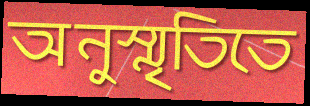
অনুস্মৃতিতে